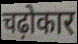
चढ़ोकार